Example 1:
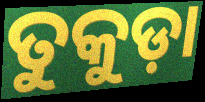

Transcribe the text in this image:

ତୁକୁଡ଼ା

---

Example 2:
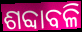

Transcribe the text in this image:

ଶବ୍ଦାବଳି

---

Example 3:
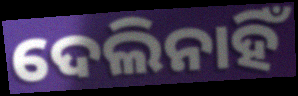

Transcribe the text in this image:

ଦେଲିନାହିଁ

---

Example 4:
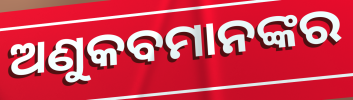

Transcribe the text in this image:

ଅଣୁକବମାନଙ୍କର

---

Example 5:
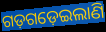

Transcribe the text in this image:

ଗଡ଼ଗଡ଼େଇଲାଣି